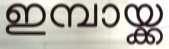
ഇമ്പായ്ക്ക